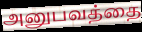
அனுபவத்தை